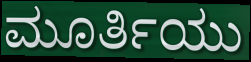
ಮೂರ್ತಿಯು